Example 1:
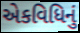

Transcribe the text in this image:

એકવિધિનું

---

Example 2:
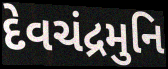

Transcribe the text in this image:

દેવચંદ્રમુનિ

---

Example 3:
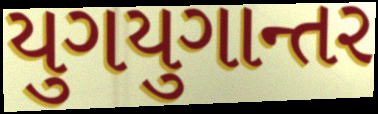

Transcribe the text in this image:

યુગયુગાન્તર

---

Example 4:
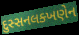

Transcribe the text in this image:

દુસ્સનલક્ખણેન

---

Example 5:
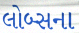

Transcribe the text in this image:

લોબ્સના